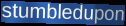
stumbledupon